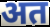
अत